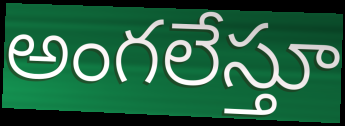
అంగలేస్తూ